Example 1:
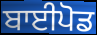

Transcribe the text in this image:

ਬਾਈਪੋਡ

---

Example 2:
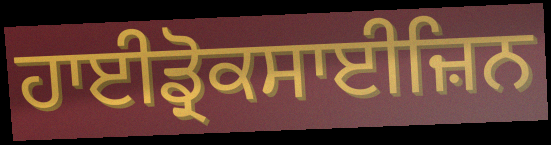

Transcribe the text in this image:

ਹਾਈਡ੍ਰੋਕਸਾਈਜ਼ਿਨ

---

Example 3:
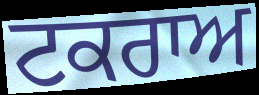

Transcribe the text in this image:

ਟਕਰਾਅ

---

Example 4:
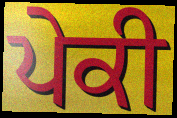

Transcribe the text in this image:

ਪੇਕੀ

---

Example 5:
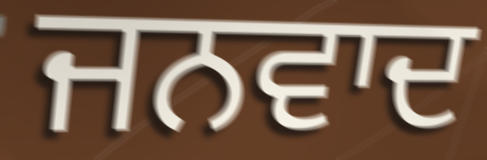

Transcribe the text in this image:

ਜਨਵਾਦ